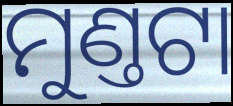
ମୁଣ୍ତଟା